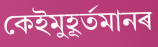
কেইমুহূৰ্তমানৰ